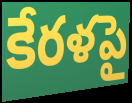
కేరళపై